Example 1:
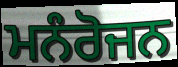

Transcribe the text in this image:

ਮਨੰਰੋਜਨ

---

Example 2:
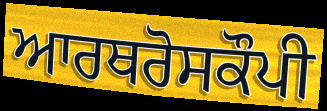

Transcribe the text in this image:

ਆਰਥਰੋਸਕੌਪੀ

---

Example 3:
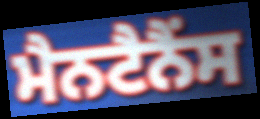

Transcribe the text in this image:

ਮੈਨਟੈਨੈਂਸ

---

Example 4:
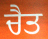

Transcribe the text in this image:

ਚੈਤ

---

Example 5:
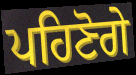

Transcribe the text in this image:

ਪਹਿਣੋਗੇ